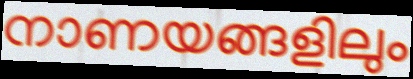
നാണയങ്ങളിലും